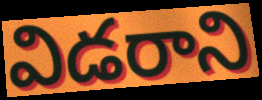
విడరాని